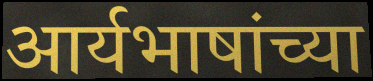
आर्यभाषांच्या